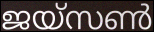
ജയ്സൺ